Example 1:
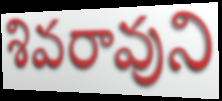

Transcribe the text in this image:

శివరావుని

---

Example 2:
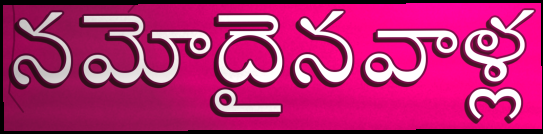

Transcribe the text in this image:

నమోదైనవాళ్ల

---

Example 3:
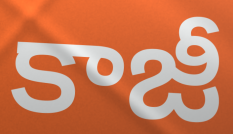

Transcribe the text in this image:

కాజీ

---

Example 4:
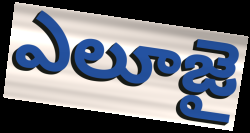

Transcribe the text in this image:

ఎలూజై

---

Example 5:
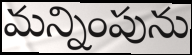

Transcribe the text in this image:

మన్నింపును